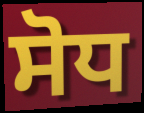
ਸੋਧ